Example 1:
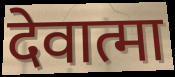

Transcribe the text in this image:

देवात्मा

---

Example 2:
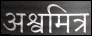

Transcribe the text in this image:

अश्वमित्र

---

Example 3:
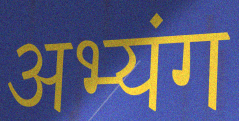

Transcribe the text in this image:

अभ्यंग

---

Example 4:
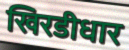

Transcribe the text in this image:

खिरडीधार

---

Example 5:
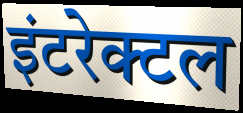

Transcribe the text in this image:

इंटरेक्टल